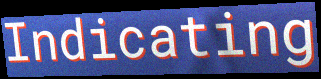
Indicating